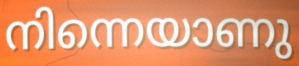
നിന്നെയാണു